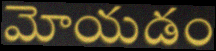
మోయడం